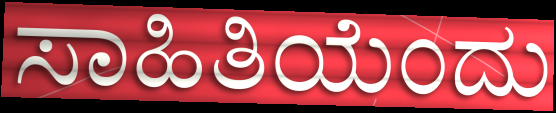
ಸಾಹಿತಿಯೆಂದು